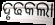
ଦୃଢକଲା